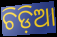
ଚିଡ଼ିଆ